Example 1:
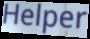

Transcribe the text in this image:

Helper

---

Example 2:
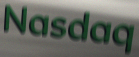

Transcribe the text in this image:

Nasdaq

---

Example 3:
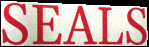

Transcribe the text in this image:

SEALS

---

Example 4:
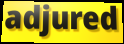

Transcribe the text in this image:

adjured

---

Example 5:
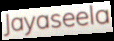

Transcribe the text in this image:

Jayaseela